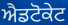
ਐਡਟੋਕੇਟ